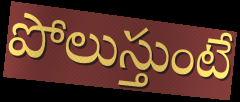
పోలుస్తుంటే